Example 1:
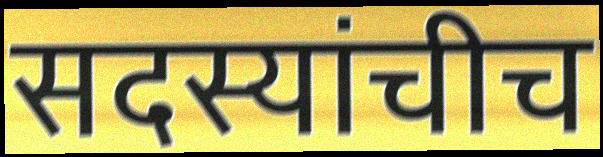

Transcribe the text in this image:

सदस्यांचीच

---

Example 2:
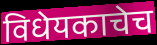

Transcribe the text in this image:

विधेयकाचेच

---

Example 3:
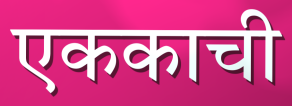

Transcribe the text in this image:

एककाची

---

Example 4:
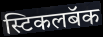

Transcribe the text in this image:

स्टिकलबॅक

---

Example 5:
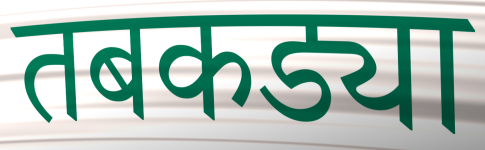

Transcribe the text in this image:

तबकड्या